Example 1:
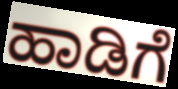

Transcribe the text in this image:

ಹಾಡಿಗೆ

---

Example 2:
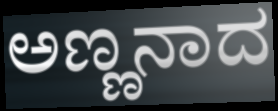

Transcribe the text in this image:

ಅಣ್ಣನಾದ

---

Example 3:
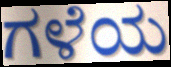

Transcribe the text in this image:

ಗಳೆಯ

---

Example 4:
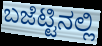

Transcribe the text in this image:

ಬಜೆಟ್ಟಿನಲ್ಲಿ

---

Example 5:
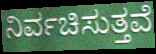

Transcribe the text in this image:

ನಿರ್ವಚಿಸುತ್ತವೆ